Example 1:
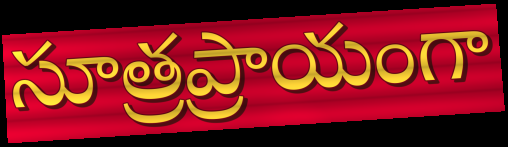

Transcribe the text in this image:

సూత్రప్రాయంగా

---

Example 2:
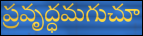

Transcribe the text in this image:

ప్రవృద్ధమగుచూ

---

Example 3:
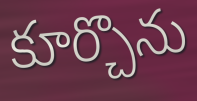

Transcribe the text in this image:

కూర్చొను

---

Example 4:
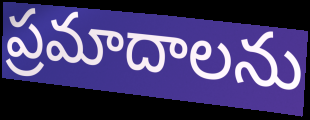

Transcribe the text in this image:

ప్రమాదాలను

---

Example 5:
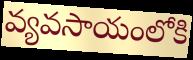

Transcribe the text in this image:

వ్యవసాయంలోకి